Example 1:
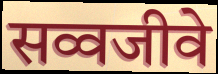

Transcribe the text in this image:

सव्वजीवे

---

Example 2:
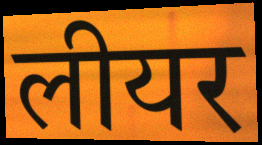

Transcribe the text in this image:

लीयर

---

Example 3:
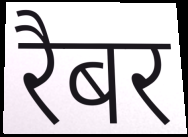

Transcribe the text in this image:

रैबर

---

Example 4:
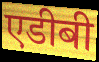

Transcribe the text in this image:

एडीबी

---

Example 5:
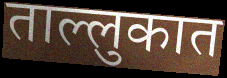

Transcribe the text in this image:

ताल्लुकात